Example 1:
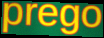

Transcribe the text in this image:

prego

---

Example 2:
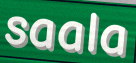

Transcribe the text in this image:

saala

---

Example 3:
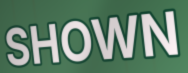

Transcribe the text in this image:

SHOWN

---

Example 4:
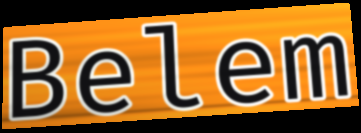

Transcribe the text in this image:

Belem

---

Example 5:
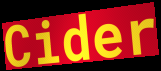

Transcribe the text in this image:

Cider